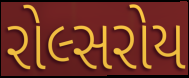
રોલ્સરોય